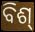
ବିଶ୍